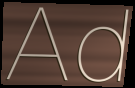
Ad